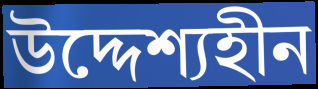
উদ্দেশ্যহীন